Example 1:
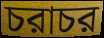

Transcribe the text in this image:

চরাচর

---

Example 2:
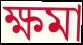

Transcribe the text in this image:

ক্ষমা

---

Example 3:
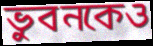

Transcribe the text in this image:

ভুবনকেও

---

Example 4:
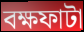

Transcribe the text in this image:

বক্ষফাটা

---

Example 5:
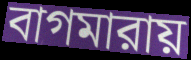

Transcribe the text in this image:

বাগমারায়